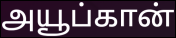
அயூப்கான்